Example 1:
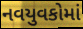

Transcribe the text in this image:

નવયુવકોમાં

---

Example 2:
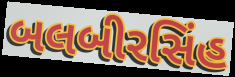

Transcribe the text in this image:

બલબીરસિંહ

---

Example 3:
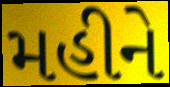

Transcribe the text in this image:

મહીને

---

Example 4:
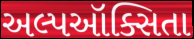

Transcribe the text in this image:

અલ્પઑક્સિતા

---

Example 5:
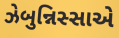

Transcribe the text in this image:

ઝેબુન્નિસ્સાએ